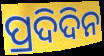
ପ୍ରଦିଦିନ